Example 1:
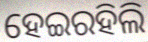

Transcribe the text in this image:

ହେଇରହିଲି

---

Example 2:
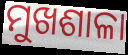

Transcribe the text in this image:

ମୁଖଶାଳା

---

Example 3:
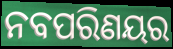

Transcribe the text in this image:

ନବପରିଣୟର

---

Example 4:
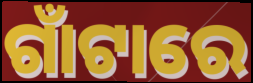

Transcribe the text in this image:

ଗାଁଟାରେ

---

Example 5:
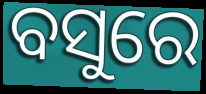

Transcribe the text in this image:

ବସୁରେ